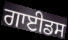
ਗਾਈਡਸ